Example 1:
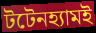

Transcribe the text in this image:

টটেনহ্যামই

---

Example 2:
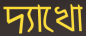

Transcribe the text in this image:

দ্যাখো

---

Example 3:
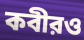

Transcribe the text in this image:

কবীরও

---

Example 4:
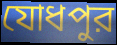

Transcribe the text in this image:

যোধপুর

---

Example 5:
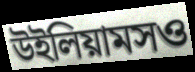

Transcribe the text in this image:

উইলিয়ামসও